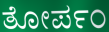
ತೋರ್ಪಂ